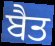
ਬੈਤ